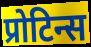
प्रोटिन्स